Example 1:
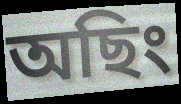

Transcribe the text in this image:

অছিং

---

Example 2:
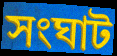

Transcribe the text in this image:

সংঘাট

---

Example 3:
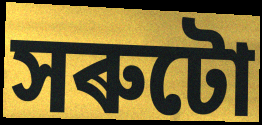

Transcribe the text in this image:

সৰুটো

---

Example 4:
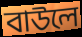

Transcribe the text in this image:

বাউলে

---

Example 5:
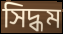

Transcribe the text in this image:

সিদ্ধম